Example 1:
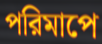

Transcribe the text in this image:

পরিমাপে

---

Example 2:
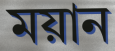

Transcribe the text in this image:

ময়ান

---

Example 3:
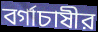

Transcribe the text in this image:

বর্গাচাষীর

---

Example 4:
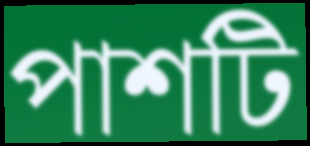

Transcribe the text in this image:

পাশটি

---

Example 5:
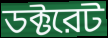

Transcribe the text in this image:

ডক্টরেট